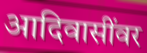
आदिवासींवर